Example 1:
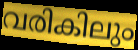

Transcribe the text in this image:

വരികിലും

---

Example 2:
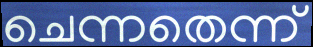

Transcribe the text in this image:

ചെന്നതെന്ന്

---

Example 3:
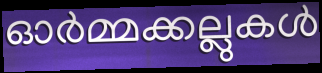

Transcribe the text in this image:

ഓർമ്മക്കല്ലുകൾ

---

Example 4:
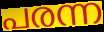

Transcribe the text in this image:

പരന്ന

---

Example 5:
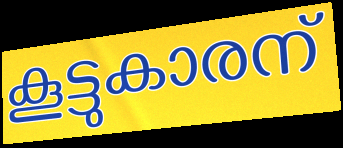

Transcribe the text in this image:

കൂട്ടുകാരന്